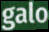
galo